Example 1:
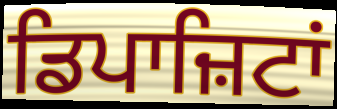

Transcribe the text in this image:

ਡਿਪਾਜ਼ਿਟਾਂ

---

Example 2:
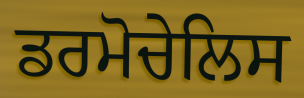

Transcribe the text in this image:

ਡਰਮੋਚੇਲਿਸ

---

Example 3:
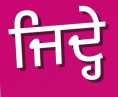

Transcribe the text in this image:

ਜਿਦ੍ਹੇ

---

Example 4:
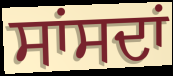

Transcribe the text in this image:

ਸਾਂਸਦਾਂ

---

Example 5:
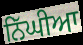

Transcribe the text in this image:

ਨਿੱਘੀਆ